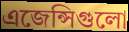
এজেন্সিগুলো